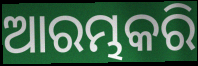
ଆରମ୍ଭକରି